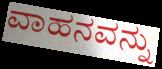
ವಾಹನವನ್ನು